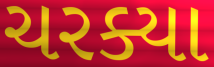
ચરક્યા